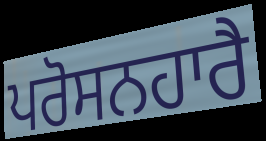
ਪਰੋਸਨਹਾਰੈ